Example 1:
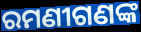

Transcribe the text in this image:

ରମଣୀଗଣଙ୍କ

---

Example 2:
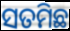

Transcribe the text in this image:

ସତମିଛ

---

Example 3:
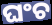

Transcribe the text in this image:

ଘଂଚ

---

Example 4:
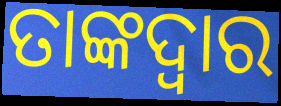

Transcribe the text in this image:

ତାଙ୍କଦ୍ୱାର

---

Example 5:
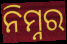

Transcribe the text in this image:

ନିମ୍ନର